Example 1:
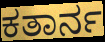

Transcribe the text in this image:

ಕತಾರ್ನ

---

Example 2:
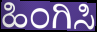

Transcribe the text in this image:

ಹಿಂಗಿಸಿ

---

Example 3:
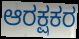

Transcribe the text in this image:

ಆರಕ್ಷಕರ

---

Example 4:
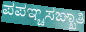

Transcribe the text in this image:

ಪಪಞ್ಚಸಙ್ಖಾತಿ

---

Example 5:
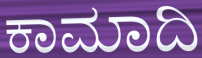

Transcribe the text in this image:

ಕಾಮಾದಿ